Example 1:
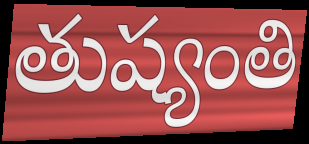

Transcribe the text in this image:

తుష్యంతి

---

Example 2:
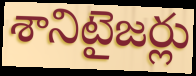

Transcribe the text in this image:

శానిటైజర్లు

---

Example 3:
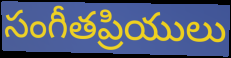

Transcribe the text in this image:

సంగీతప్రియులు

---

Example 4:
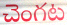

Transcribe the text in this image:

చెంగట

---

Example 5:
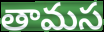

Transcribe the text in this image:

తామస